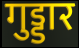
गुड्डार